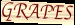
GRAPES